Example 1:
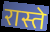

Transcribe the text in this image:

रास्ते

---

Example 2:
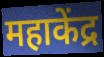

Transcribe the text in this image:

महाकेंद्र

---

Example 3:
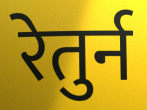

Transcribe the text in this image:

रेतुर्न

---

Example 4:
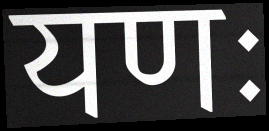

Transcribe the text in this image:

यणः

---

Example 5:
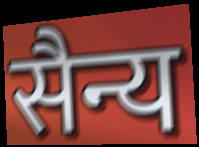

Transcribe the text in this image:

सैन्य